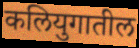
कलियुगातील